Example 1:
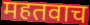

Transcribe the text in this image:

महतवाच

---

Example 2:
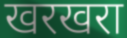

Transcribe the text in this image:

खरखरा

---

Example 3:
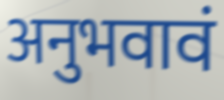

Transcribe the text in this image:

अनुभवावं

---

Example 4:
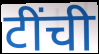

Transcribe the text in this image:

टींची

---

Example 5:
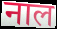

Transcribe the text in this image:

नाल